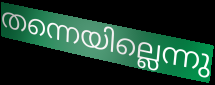
തന്നെയില്ലെന്നു